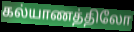
கல்யாணத்திலோ